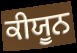
ਕੀਯੂਨ